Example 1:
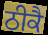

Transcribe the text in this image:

ਠੀਕੈ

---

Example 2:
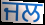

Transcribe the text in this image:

ਜਲ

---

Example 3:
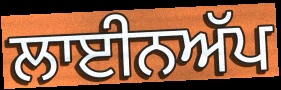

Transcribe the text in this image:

ਲਾਈਨਅੱਪ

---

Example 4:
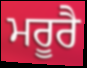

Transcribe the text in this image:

ਮਰੂਰੈ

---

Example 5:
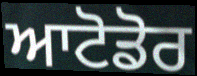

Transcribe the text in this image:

ਆਟੋਡੋਰ